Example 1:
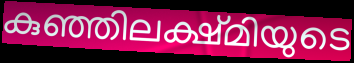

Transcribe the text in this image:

കുഞ്ഞിലക്ഷ്മിയുടെ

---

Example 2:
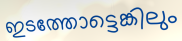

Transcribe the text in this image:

ഇടത്തോട്ടെങ്കിലും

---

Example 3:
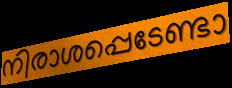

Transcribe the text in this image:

നിരാശപ്പെടേണ്ടാ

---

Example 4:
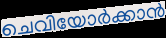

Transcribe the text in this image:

ചെവിയോർക്കാൻ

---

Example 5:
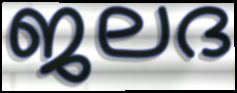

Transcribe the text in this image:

ജലദ